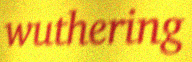
wuthering